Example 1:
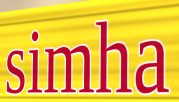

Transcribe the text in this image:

simha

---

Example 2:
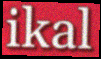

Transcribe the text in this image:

ikal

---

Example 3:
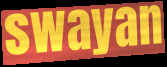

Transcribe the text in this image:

swayan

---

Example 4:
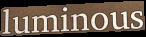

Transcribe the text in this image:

luminous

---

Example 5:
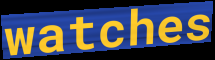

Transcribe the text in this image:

watches